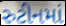
રુટીનમાં